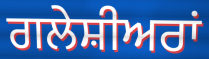
ਗਲੇਸ਼ੀਅਰਾਂ